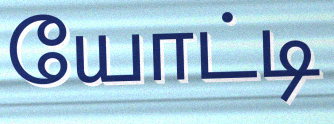
யோட்டி